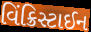
વિંક્રિસ્ટાઈન